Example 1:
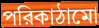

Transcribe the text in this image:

পরিকাঠামো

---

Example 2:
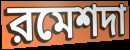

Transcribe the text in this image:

রমেশদা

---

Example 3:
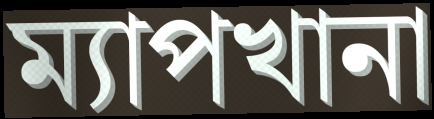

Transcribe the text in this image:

ম্যাপখানা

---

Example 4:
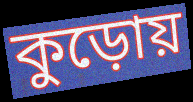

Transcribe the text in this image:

কুড়োয়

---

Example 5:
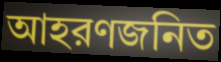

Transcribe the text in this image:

আহরণজনিত